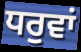
ਧਰੁਵਾਂ